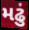
મઢું